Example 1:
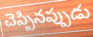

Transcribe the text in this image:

చెప్పినప్పుడు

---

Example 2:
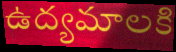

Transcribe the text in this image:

ఉద్యమాలకి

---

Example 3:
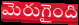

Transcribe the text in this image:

మెరుగైంది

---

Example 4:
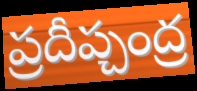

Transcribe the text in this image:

ప్రదీప్చంద్ర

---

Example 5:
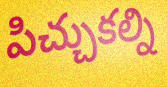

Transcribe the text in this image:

పిచ్చుకల్ని